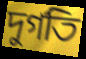
দুৰ্গতি